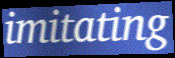
imitating